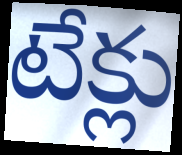
టేక్లు